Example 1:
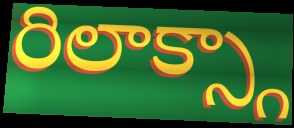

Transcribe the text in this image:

రిలాక్స్గా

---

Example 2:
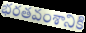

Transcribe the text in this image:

భరతవంశానికి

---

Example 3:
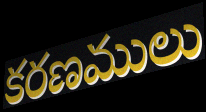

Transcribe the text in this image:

కరణములు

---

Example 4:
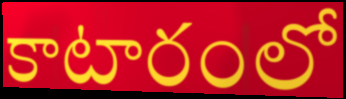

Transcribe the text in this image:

కాటారంలో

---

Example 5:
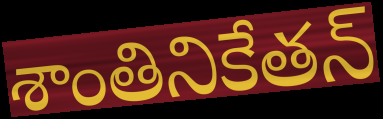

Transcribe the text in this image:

శాంతినికేతన్